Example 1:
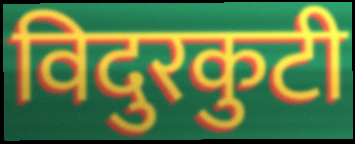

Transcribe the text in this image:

विदुरकुटी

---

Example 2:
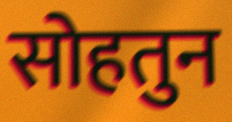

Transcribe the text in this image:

सोहतुन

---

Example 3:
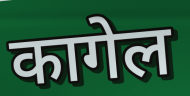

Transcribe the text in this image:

कागेल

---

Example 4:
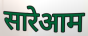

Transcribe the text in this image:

सारेआम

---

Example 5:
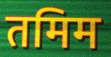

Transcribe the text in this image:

तमिम